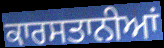
ਕਾਰਸਤਾਨੀਆਂ